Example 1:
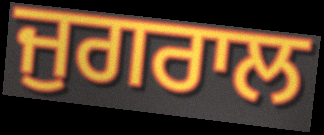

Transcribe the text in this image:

ਜੁਗਰਾਲ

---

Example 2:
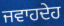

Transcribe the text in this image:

ਜਵਾਹਦੇਹ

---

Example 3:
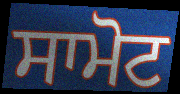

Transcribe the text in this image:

ਸਾਮੋਟ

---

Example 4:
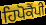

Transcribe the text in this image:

ਹਿਪੋਕੈਂਪੀ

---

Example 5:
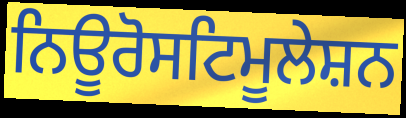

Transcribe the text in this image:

ਨਿਊਰੋਸਟਿਮੂਲੇਸ਼ਨ